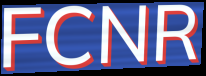
FCNR